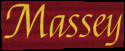
Massey